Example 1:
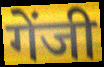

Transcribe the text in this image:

गेंजी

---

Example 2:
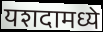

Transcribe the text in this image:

यशदामध्ये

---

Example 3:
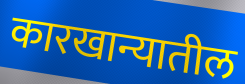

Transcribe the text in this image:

कारखान्यातील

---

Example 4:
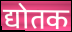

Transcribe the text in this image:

द्योतक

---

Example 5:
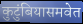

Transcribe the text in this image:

कुटुंबियासमवेत